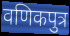
वणिकपुत्र